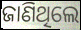
ଜାଣିଥିଲେ